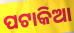
ପଟାକିଆ